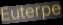
Euterpe